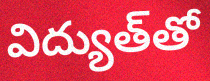
విద్యుత్‌తో